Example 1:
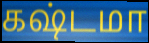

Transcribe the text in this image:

கஷ்டமா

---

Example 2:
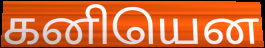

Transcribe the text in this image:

கனியென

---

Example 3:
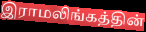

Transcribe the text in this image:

இராமலிங்கத்தின்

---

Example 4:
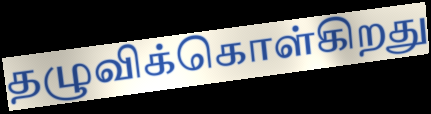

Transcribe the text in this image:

தழுவிக்கொள்கிறது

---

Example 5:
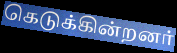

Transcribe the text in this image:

கெடுக்கின்றனர்